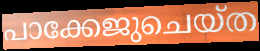
പാക്കേജുചെയ്ത